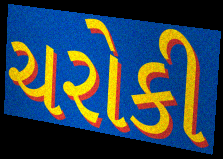
ચરોકી